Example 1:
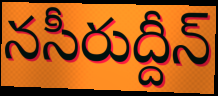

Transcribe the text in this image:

నసీరుద్దీన్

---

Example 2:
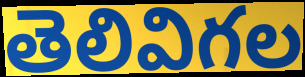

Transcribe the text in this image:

తెలివిగల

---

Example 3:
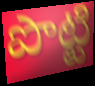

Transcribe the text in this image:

పొట్టి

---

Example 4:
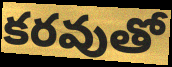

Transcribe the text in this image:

కరవుతో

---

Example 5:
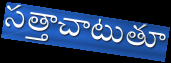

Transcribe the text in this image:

సత్తాచాటుతూ